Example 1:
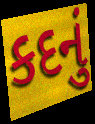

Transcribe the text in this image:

કદનું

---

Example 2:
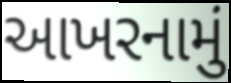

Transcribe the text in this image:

આખરનામું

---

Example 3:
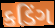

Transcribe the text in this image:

કડિંગ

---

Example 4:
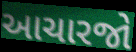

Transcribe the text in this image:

આચારજો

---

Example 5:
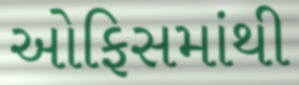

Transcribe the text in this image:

ઓફિસમાંથી